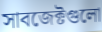
সাবজেক্টগুলো